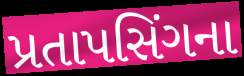
પ્રતાપસિંગના